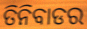
ତିନିବାଡର